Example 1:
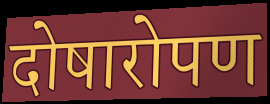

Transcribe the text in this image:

दोषारोपण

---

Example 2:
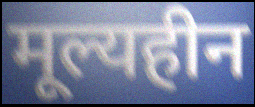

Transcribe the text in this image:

मूल्यहीन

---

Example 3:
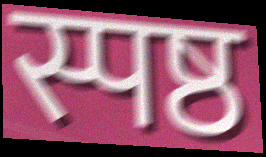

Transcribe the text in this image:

स्पष्ठ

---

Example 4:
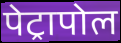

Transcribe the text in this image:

पेट्रापोल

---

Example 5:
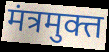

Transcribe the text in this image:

मंत्रमुक्त